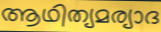
ആഥിത്യമര്യാദ